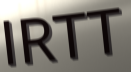
IRTT